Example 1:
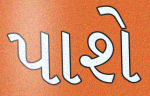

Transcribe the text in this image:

પાશે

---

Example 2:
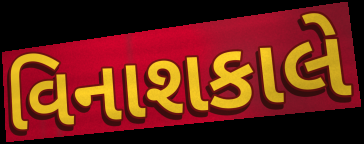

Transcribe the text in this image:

વિનાશકાલે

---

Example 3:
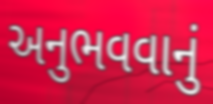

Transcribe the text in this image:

અનુભવવાનું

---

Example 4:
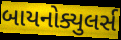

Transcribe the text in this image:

બાયનોક્યુલર્સ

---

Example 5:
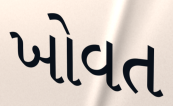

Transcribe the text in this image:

ખોવત